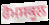
ਹੋਮਸਕੂਲ